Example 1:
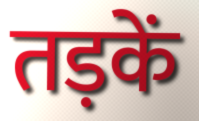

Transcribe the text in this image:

तड़कें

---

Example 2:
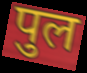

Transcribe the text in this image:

पुल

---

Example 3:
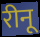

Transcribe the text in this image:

रीनू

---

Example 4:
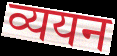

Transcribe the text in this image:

व्ययन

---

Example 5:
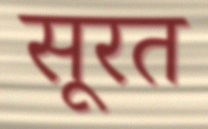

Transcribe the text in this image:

सूरत